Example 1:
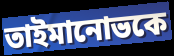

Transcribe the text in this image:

তাইমানোভকে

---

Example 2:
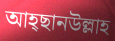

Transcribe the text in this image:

আহ্ছানউল্লাহ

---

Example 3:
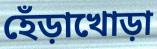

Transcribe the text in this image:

হেঁড়াখোড়া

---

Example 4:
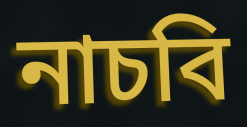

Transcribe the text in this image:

নাচবি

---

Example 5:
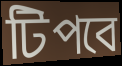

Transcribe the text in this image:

টিপবে